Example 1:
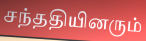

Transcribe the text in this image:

சந்ததியினரும்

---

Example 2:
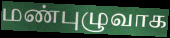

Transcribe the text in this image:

மண்புழுவாக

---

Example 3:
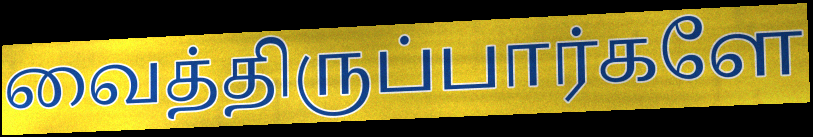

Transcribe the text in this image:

வைத்திருப்பார்களே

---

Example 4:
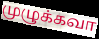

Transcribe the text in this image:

முழுக்கவா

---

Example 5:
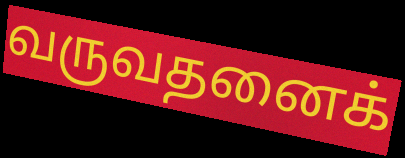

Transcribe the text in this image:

வருவதனைக்